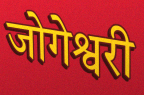
जोगेश्वरी